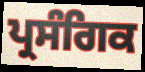
ਪ੍ਰਸੰਗਿਕ